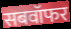
सबवॉफर